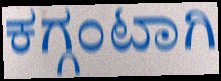
ಕಗ್ಗಂಟಾಗಿ